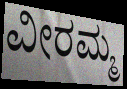
ವೀರಮ್ಮ